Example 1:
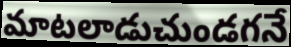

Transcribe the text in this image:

మాటలాడుచుండగనే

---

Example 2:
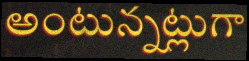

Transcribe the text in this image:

అంటున్నట్లుగా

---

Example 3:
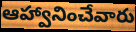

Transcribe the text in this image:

ఆహ్వానించేవారు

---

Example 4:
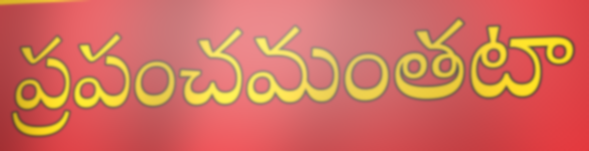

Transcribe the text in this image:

ప్రపంచమంతటా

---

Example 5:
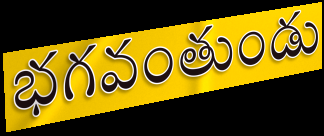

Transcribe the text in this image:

భగవంతుండు